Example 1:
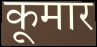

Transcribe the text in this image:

कूमार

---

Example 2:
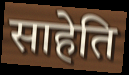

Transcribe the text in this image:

साहेति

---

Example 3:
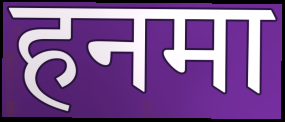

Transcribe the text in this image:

हनमा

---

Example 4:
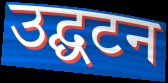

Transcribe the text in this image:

उद्घटन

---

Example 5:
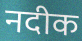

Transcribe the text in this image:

नदीक